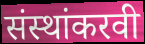
संस्थांकरवी